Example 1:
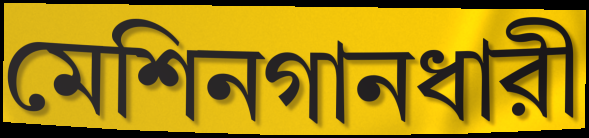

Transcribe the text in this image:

মেশিনগানধারী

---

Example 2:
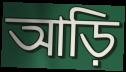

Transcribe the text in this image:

আড়ি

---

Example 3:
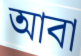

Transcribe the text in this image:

আবা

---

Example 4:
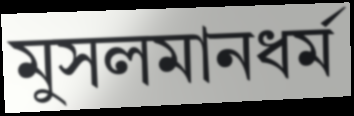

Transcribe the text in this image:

মুসলমানধর্ম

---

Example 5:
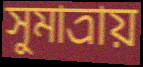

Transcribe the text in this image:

সুমাত্রায়